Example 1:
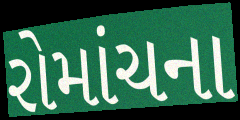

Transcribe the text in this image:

રોમાંચના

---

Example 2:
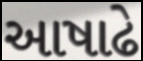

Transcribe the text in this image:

આષાઢે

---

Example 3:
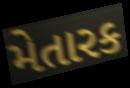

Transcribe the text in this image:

મેતારક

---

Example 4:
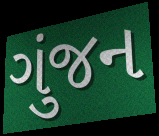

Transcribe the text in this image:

ગુંજન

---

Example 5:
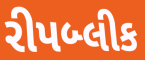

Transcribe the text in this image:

રીપબ્લીક